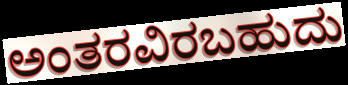
ಅಂತರವಿರಬಹುದು